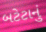
બટેટાનું